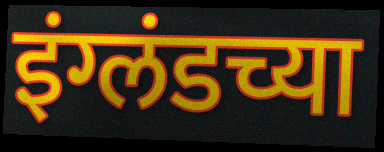
इंग्लंडच्या